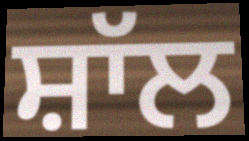
ਸ਼ਾੱਲ